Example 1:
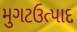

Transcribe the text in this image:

મુગટઉત્પાદ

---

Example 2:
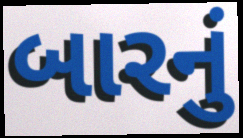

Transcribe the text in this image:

બારનું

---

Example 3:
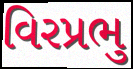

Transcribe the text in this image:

વિરપ્રભુ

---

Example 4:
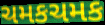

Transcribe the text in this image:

ચમકચમક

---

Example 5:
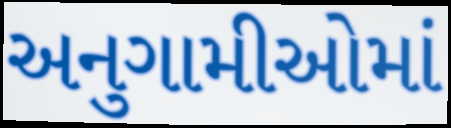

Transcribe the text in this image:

અનુગામીઓમાં